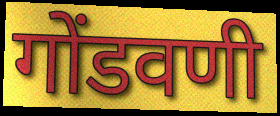
गोंडवणी